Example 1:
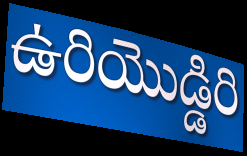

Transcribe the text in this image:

ఉరియొడ్డిరి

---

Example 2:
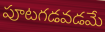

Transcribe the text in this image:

పూటగడవడమే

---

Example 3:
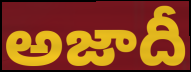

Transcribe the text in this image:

అజాదీ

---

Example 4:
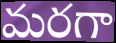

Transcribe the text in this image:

మరగా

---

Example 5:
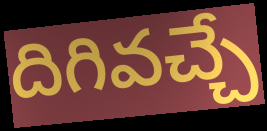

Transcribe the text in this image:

దిగివచ్చే